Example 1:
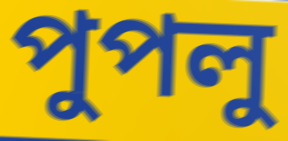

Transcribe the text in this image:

পুপলু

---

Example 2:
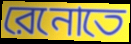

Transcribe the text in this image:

রেনোতে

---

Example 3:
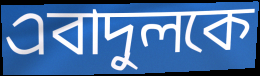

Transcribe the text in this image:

এবাদুলকে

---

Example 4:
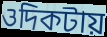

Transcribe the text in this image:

ওদিকটায়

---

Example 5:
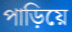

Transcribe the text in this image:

পাড়িয়ে